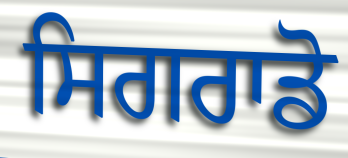
ਸਿਗਰਾਡੋ